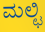
ಮಲ್ಟಿ